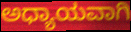
ಅಧ್ಯಾಯವಾಗಿ